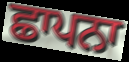
ਛਾਪਨਾ